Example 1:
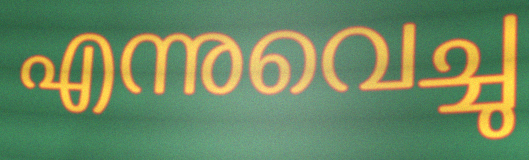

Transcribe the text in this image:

എന്നുവെച്ചു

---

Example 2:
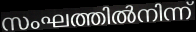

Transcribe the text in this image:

സംഘത്തിൽനിന്ന്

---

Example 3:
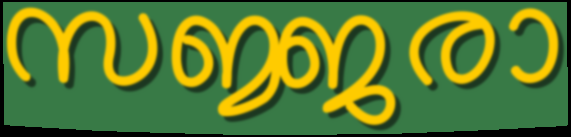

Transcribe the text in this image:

സജ്ജരാ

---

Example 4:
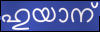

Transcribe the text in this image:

ഹുയാന്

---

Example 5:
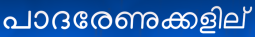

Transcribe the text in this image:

പാദരേണുക്കളില്